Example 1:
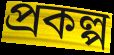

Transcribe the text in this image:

প্রকল্প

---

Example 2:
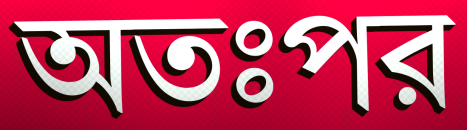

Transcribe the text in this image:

অতঃপর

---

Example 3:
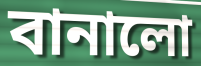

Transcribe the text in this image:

বানালো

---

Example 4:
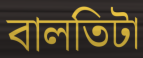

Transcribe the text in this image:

বালতিটা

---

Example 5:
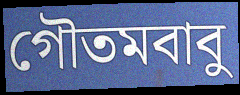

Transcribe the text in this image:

গৌতমবাবু